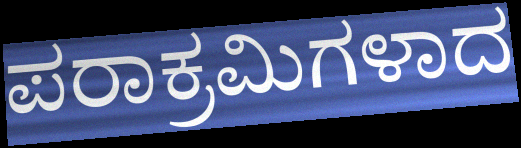
ಪರಾಕ್ರಮಿಗಳಾದ